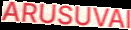
ARUSUVAI